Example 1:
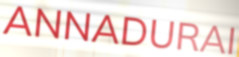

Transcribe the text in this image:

ANNADURAI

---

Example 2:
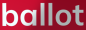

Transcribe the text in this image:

ballot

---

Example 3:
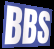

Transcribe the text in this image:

BBS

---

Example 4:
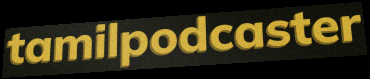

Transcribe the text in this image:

tamilpodcaster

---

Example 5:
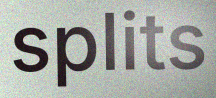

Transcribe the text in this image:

splits